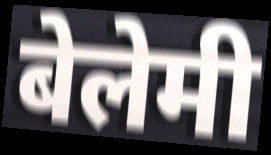
बेलेमी